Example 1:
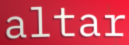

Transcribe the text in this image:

altar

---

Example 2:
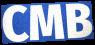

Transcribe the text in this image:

CMB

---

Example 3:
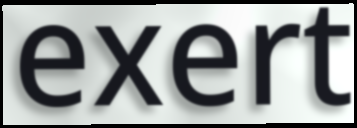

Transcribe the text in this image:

exert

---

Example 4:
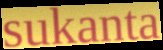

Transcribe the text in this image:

sukanta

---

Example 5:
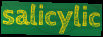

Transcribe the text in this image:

salicylic